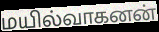
மயில்வாகனன்